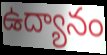
ఉద్యానం